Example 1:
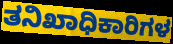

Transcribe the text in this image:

ತನಿಖಾಧಿಕಾರಿಗಳ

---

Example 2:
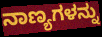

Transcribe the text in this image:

ನಾಣ್ಯಗಳನ್ನು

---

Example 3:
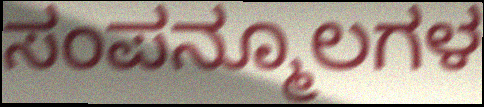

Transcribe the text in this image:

ಸಂಪನ್ಮೂಲಗಳ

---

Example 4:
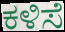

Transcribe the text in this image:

ಕಳಿಸೆ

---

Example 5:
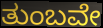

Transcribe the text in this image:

ತುಂಬವೇ